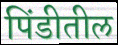
पिंडीतील